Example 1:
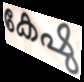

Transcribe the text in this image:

കേഷു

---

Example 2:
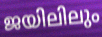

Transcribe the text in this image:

ജയിലിലും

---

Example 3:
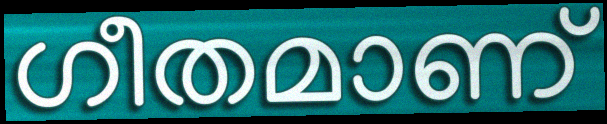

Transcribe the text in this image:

ഗീതമാണ്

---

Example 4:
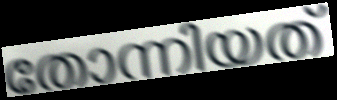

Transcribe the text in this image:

തോന്നിയത്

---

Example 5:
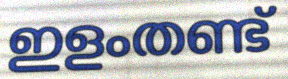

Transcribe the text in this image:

ഇളംതണ്ട്